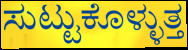
ಸುಟ್ಟುಕೊಳ್ಳುತ್ತ